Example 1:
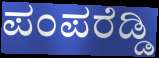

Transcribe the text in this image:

ಪಂಪರೆಡ್ಡಿ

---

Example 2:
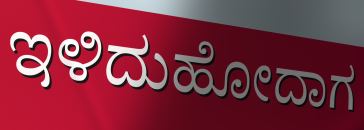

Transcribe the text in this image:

ಇಳಿದುಹೋದಾಗ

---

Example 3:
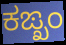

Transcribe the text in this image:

ಕಙ್ಖಂ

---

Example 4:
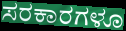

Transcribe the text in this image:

ಸರಕಾರಗಳೂ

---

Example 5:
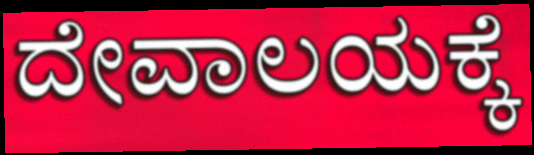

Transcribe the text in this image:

ದೇವಾಲಯಕ್ಕೆ